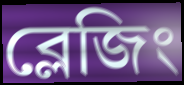
ব্লেজিং